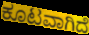
ಕೂಟವಾಗಿದೆ